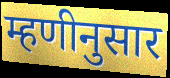
म्हणीनुसार